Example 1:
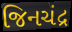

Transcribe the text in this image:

જિનચંદ્ર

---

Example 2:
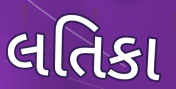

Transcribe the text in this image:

લતિકા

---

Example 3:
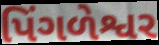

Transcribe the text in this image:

પિંગળેશ્વર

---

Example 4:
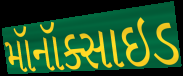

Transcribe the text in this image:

મૉનૉક્સાઇડ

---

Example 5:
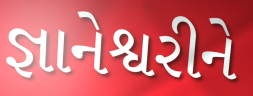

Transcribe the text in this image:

જ્ઞાનેશ્વરીને